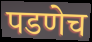
पडणेच